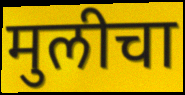
मुलीचा